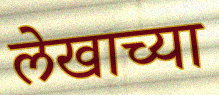
लेखाच्या